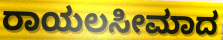
ರಾಯಲಸೀಮಾದ